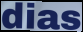
dias